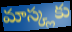
మాస్క్లకు